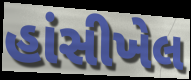
હાંસીખેલ